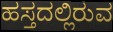
ಹಸ್ತದಲ್ಲಿರುವ